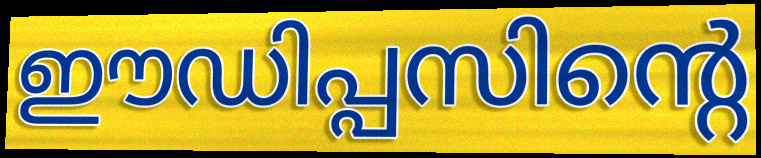
ഈഡിപ്പസിന്റെ